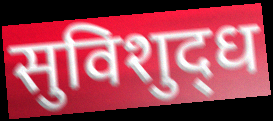
सुविशुद्ध